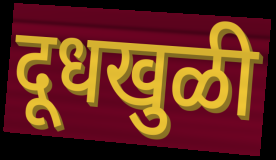
दूधखुळी